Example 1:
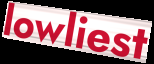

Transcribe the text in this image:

lowliest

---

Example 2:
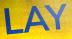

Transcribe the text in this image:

LAY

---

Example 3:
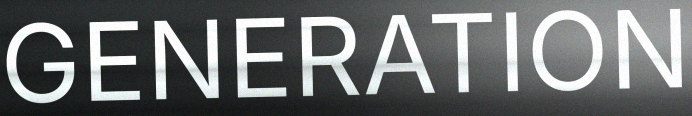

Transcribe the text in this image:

GENERATION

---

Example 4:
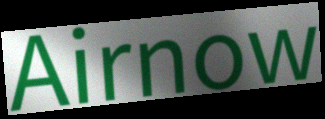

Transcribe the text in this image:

Airnow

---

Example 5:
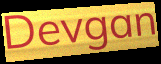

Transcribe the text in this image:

Devgan